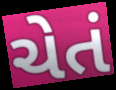
ચેતં